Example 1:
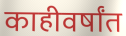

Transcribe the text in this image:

काहीवर्षांत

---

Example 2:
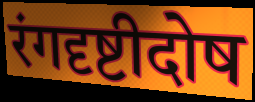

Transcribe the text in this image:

रंगदृष्टीदोष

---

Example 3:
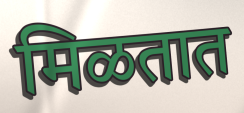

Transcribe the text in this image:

मिळतात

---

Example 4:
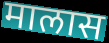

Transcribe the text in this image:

मालास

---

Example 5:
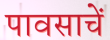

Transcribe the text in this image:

पावसाचें